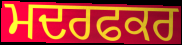
ਮਦਰਫਕਰ